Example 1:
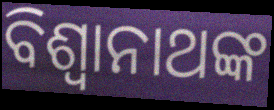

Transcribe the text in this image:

ବିଶ୍ୱାନାଥଙ୍କ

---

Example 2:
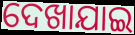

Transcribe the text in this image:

ଦେଖାଯାଇ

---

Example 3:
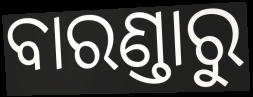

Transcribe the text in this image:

ବାରଣ୍ଡାରୁ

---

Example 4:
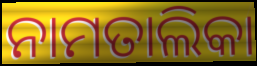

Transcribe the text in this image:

ନାମତାଲିକା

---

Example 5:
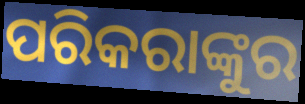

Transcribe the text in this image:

ପରିକରାଙ୍କୁର